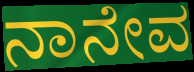
ನಾನೇವ